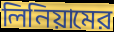
লিনিয়ামের